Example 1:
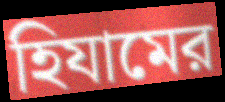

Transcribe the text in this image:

হিযামের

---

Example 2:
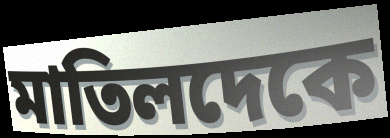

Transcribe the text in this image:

মাতিলদেকে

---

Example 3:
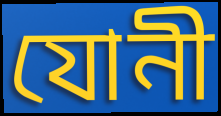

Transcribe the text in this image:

যোনী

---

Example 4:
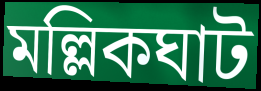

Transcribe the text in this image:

মল্লিকঘাট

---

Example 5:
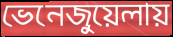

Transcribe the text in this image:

ভেনেজুয়েলায়